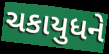
ચકાયુધને